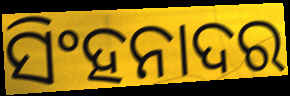
ସିଂହନାଦର